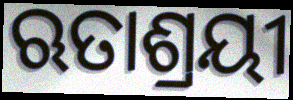
ଋତାଶ୍ରୟୀ